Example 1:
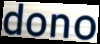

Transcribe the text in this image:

dono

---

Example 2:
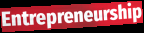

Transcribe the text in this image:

Entrepreneurship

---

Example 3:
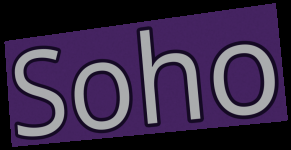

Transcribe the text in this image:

Soho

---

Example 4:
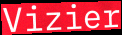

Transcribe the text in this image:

Vizier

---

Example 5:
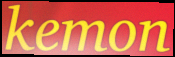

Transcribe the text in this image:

kemon